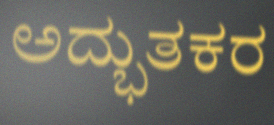
ಅದ್ಭುತಕರ